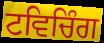
ਟਵਿਚਿੰਗ